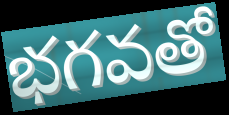
భగవతో